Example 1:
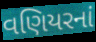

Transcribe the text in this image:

વણિયરનાં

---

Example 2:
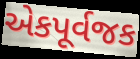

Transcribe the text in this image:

એકપૂર્વજક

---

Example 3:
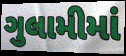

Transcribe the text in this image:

ગુલામીમાં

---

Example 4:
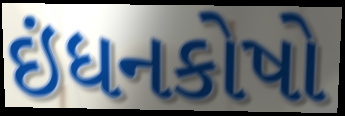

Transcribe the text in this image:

ઇંધનકોષો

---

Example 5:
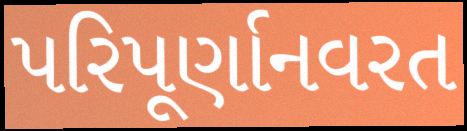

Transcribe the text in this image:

પરિપૂર્ણાનવરત